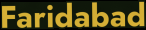
Faridabad